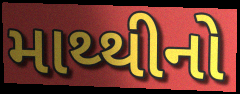
માથ્થીનો